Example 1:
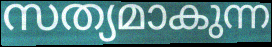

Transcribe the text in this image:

സത്യമാകുന്ന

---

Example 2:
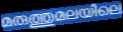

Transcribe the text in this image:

മരുത്തുമലയിലെ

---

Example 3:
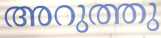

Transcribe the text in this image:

അറുത്തു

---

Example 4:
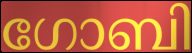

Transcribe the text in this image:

ഗോബി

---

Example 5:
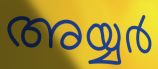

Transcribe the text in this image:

അയ്യർ